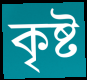
কৃষ্ট